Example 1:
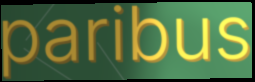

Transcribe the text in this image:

paribus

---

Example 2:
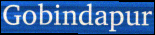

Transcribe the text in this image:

Gobindapur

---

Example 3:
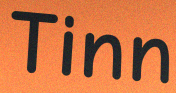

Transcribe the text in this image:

Tinn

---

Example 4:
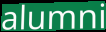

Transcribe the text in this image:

alumni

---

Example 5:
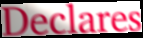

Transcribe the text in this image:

Declares